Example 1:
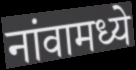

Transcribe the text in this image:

नांवामध्ये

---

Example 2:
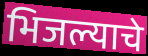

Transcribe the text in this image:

भिजल्याचे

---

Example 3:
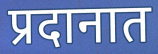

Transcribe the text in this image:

प्रदानात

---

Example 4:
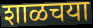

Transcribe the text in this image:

शाळचया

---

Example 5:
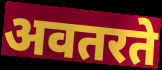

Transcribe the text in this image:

अवतरते